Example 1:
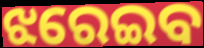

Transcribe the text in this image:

ଝରେଇବ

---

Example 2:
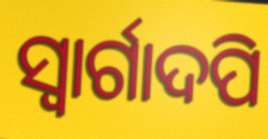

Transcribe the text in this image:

ସ୍ୱାର୍ଗାଦପି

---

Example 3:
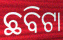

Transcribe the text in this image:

ଛବିଟା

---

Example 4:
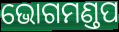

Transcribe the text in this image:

ଭୋଗମଣ୍ଡପ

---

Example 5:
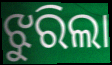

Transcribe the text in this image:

ଝୁରିଲା